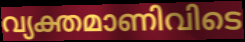
വ്യക്തമാണിവിടെ